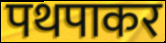
पथपाकर